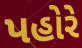
પહોરે